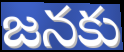
జనకు